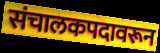
संचालकपदावरून